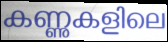
കണ്ണുകളിലെ